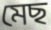
মেছ